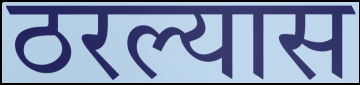
ठरल्यास